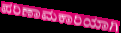
ಪರಿಣಾಮಕಾರಿಯಾಗಿ